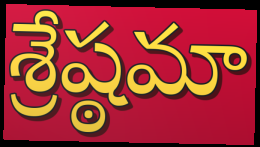
శ్రేష్ఠమా